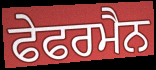
ਫੇਫਰਮੈਨ